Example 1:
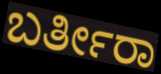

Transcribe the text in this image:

ಬರ್ತೀರಾ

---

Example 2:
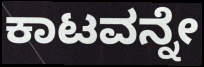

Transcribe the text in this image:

ಕಾಟವನ್ನೇ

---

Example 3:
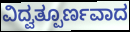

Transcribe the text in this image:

ವಿದ್ವತ್ಪೂರ್ಣವಾದ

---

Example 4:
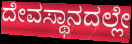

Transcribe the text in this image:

ದೇವಸ್ಥಾನದಲ್ಲೇ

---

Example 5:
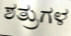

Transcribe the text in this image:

ಶತ್ರುಗಳ